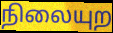
நிலையுற